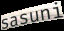
sasuni